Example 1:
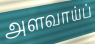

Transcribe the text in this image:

அளவாய்ப்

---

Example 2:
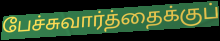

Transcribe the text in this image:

பேச்சுவார்த்தைக்குப்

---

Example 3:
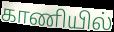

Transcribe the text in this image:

காணியில்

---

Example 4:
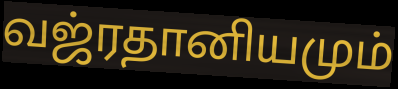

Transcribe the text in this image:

வஜ்ரதானியமும்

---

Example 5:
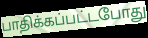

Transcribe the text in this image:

பாதிக்கப்பட்டபோது